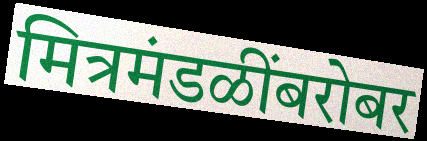
मित्रमंडळींबरोबर